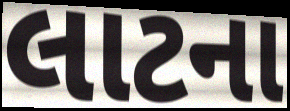
લાટના